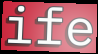
ife